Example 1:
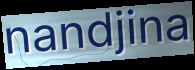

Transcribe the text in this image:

nandjina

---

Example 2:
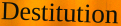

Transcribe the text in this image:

Destitution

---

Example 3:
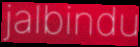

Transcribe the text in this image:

jalbindu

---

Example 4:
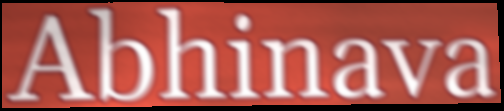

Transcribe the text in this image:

Abhinava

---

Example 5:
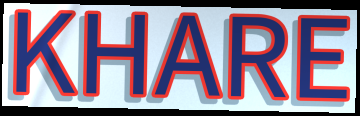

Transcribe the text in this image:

KHARE